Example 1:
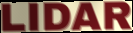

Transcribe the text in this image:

LIDAR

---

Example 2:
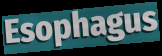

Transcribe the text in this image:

Esophagus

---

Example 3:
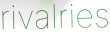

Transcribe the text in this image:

rivalries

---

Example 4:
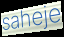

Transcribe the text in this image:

saheje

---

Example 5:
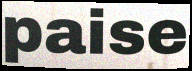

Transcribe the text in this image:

paise